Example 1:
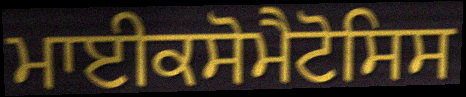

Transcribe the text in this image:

ਮਾਈਕਸੋਮੈਟੋਸਿਸ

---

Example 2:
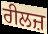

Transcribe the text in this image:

ਰੀਲਜ਼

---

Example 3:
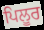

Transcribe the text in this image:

ਪਿਲੂਰ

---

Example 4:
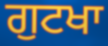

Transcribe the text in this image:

ਗੁਟਖਾ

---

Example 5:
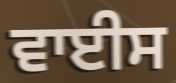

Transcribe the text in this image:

ਵਾਈਸ